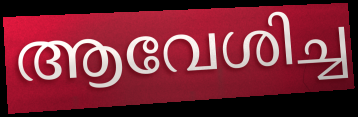
ആവേശിച്ച